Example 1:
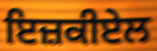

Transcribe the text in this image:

ਇਜ਼ਕੀਏਲ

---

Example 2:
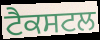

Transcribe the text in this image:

ਟੈਕਸਟਲ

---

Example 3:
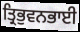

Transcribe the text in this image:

ਤ੍ਰਿਭੁਵਨਭਾਈ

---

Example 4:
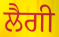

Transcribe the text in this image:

ਲੈਗੀ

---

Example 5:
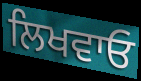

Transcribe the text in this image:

ਲਿਖਵਾਓ